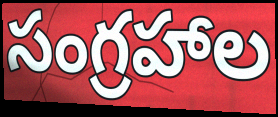
సంగ్రహాల